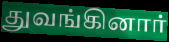
துவங்கினார்